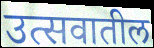
उत्सवातील